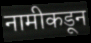
नामीकडून